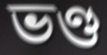
ভণ্ড